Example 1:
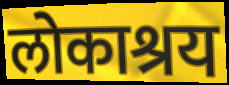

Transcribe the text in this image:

लोकाश्रय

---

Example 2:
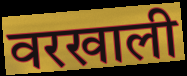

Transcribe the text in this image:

वरखाली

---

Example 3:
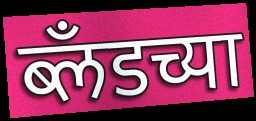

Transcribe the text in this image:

ब्लँडच्या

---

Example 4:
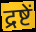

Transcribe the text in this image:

द्रष्टें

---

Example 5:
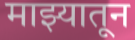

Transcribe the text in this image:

माझ्यातून